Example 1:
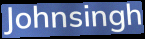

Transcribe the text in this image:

Johnsingh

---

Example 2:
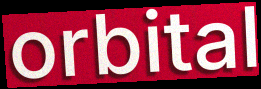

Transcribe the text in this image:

orbital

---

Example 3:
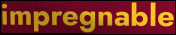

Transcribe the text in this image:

impregnable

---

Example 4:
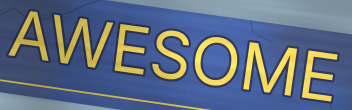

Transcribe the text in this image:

AWESOME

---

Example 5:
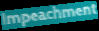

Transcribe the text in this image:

Impeachment